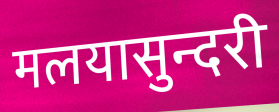
मलयासुन्दरी